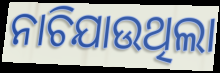
ନାଚିଯାଉଥିଲା